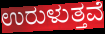
ಉರುಳುತ್ತವೆ